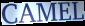
CAMEL